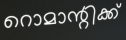
റൊമാന്റിക്ക്